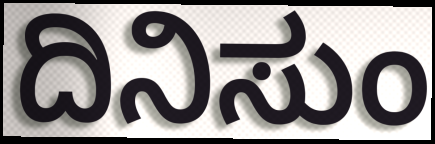
ದಿನಿಸುಂ